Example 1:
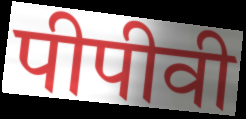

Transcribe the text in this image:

पीपीवी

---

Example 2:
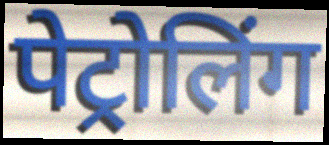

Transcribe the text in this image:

पेट्रोलिंग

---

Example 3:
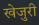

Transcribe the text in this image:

खेजुरी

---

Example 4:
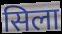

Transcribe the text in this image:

सिला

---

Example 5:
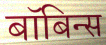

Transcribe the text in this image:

बॉबिन्स